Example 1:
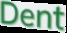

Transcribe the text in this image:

Dent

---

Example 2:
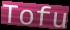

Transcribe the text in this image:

Tofu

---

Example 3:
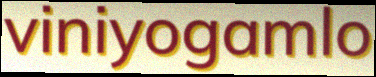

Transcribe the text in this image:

viniyogamlo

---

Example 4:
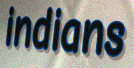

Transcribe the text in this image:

indians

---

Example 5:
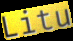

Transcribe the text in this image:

Litu